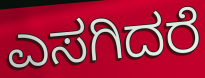
ಎಸಗಿದರೆ